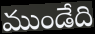
ముండేది